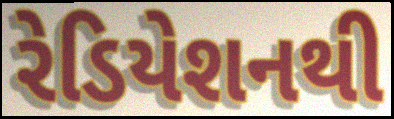
રેડિયેશનથી